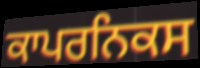
ਕਾਪਰਨਿਕਸ